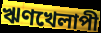
ঋণখেলাপী